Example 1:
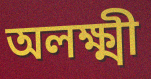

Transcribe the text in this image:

অলক্ষ্মী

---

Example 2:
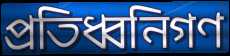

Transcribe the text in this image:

প্রতিধ্বনিগণ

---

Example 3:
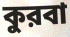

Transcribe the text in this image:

কুরবা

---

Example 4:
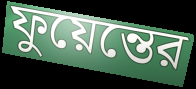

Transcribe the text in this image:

ফুয়েন্তের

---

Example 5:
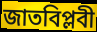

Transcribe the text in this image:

জাতবিপ্লবী